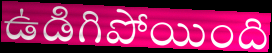
ఉడిగిపోయింది